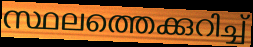
സ്ഥലത്തെക്കുറിച്ച്